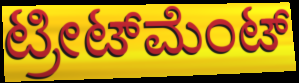
ಟ್ರೀಟ್‌ಮೆಂಟ್